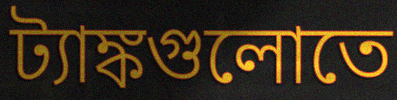
ট্যাঙ্কগুলোতে